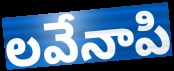
లవేనాపి